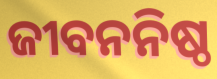
ଜୀବନନିଷ୍ଠ